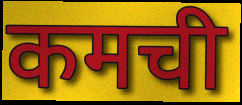
कमची